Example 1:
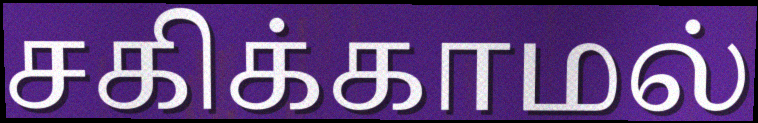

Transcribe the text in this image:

சகிக்காமல்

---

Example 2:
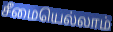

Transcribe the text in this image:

சீமையெல்லாம்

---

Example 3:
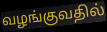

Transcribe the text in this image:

வழங்குவதில்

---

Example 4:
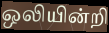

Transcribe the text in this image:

ஒலியின்றி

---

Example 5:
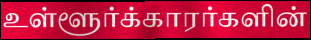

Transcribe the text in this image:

உள்ளூர்க்காரர்களின்